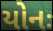
યોનઃ